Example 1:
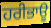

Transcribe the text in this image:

ਹਰੀਭਾਊ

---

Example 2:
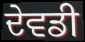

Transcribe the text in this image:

ਦੇਵਡੀ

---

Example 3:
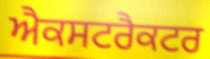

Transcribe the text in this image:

ਐਕਸਟਰੈਕਟਰ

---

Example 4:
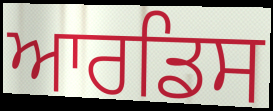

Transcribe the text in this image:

ਆਰਡਿਸ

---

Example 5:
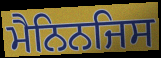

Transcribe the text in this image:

ਮੈਨਿਨਜਿਸ